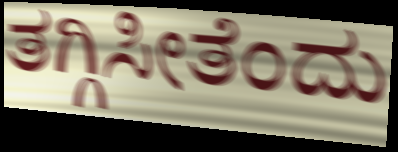
ತಗ್ಗಿಸೀತೆಂದು